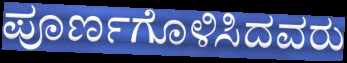
ಪೂರ್ಣಗೊಳಿಸಿದವರು